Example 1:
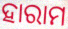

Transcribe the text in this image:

ହାରାମ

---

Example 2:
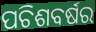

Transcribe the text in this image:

ପଚିଶବର୍ଷର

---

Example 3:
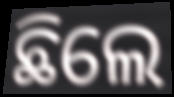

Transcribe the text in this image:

ଛିଲେ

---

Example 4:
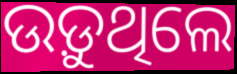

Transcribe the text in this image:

ଉଡ଼ୁଥିଲେ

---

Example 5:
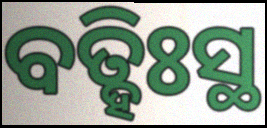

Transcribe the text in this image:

ବତ୍ହିଃସ୍ଥ